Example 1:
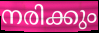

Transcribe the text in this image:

നരിക്കും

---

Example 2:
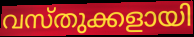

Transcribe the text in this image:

വസ്തുക്കളായി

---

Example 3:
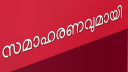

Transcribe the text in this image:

സമാഹരണവുമായി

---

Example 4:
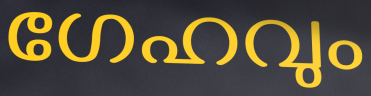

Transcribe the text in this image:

ഗേഹവും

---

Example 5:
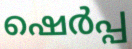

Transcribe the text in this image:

ഷെർപ്പ